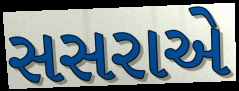
સસરાએ